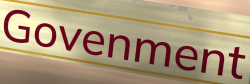
Govenment